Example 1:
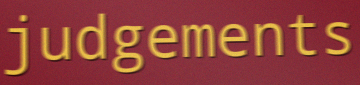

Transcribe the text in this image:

judgements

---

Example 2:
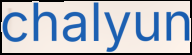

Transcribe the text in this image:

chalyun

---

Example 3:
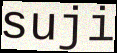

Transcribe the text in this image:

suji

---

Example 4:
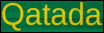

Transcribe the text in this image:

Qatada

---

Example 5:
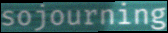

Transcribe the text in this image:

sojourning